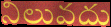
నిలువదు